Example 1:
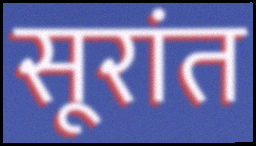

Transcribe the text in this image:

सूरांत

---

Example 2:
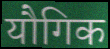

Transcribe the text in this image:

यौगिक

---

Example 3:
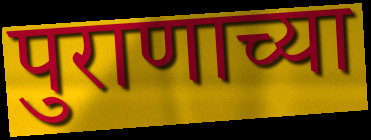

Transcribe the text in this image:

पुराणाच्या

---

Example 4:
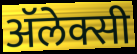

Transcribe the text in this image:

ॲलेक्सी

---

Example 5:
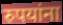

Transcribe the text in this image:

रुपयांना